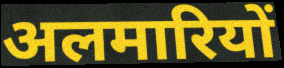
अलमारियों